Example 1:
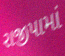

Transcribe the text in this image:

રાજીપામાં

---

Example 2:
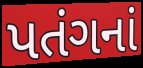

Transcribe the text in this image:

પતંગનાં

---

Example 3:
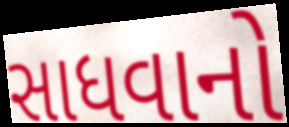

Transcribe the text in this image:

સાધવાનો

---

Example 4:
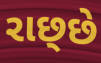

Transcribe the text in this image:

રાછ્છે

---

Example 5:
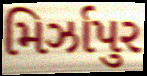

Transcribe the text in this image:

મિર્ઝાપુર